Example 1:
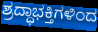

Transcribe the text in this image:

ಶ್ರದ್ಧಾಭಕ್ತಿಗಳಿಂದ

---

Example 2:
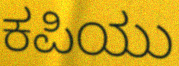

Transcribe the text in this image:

ಕಪಿಯು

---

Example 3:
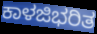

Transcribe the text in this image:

ಕಾಳಜಿಭರಿತ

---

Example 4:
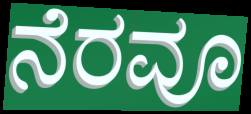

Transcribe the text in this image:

ನೆರವೂ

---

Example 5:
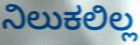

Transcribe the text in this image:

ನಿಲುಕಲಿಲ್ಲ